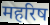
महरिष